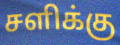
சளிக்கு